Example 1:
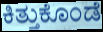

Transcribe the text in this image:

ಕಿತ್ತುಕೊಂಡೆ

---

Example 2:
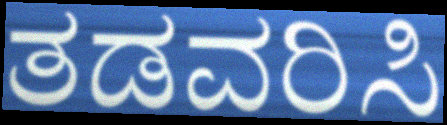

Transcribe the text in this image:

ತಡವರಿಸಿ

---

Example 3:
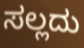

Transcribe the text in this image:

ಸಲ್ಲದು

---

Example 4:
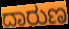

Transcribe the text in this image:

ದಾರುಣ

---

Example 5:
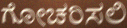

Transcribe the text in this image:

ಗೋಚರಿಸಲಿ